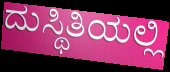
ದುಸ್ಥಿತಿಯಲ್ಲಿ